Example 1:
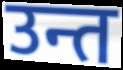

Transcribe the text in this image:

उन्त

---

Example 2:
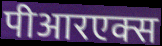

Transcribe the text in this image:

पीआरएक्स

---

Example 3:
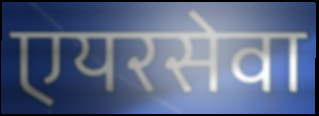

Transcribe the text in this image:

एयरसेवा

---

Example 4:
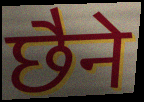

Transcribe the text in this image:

छैने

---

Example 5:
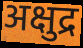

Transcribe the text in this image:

अक्षुद्र